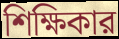
শিক্ষিকার